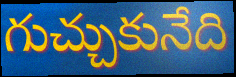
గుచ్చుకునేది